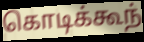
கொடிக்கூந்